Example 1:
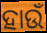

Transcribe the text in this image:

ହାଉଁ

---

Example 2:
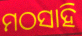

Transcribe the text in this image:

ମଠସାହି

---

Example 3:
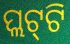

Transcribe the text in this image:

ପ୍ଲଟ୍‌ଟି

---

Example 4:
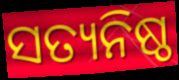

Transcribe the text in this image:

ସତ୍ୟନିଷ୍ଠ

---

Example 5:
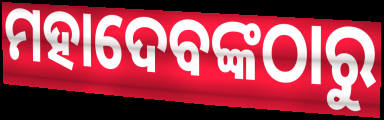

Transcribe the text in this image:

ମହାଦେବଙ୍କଠାରୁ